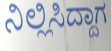
ನಿಲ್ಲಿಸಿದ್ದಾಗ